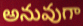
అనువుగా